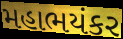
મહાભયંકર